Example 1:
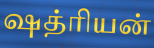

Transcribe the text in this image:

ஷத்ரியன்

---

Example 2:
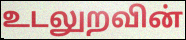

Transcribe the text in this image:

உடலுறவின்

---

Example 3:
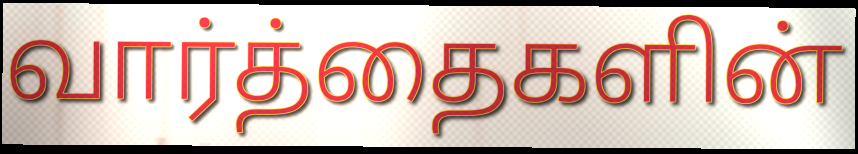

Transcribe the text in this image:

வார்த்தைகளின்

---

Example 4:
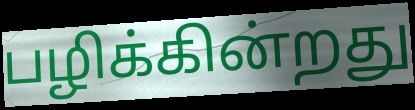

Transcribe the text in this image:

பழிக்கின்றது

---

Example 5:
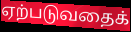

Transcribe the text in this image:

ஏற்படுவதைக்